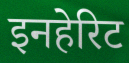
इनहेरिट